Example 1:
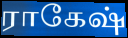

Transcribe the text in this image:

ராகேஷ்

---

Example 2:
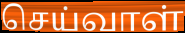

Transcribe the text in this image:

செய்வாள்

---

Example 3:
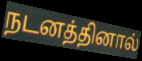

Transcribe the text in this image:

நடனத்தினால்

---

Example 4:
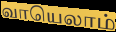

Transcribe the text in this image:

வாயெலாம்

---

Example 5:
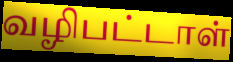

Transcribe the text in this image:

வழிபட்டாள்